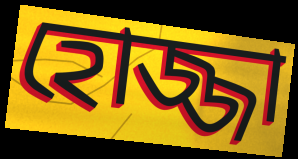
হোজ্জা